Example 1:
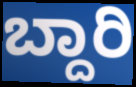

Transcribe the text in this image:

ಬ್ದಾರಿ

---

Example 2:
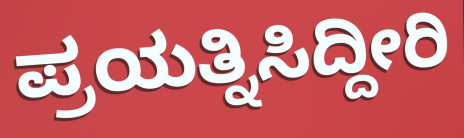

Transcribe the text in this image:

ಪ್ರಯತ್ನಿಸಿದ್ದೀರಿ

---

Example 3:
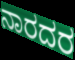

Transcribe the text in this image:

ನಾರದರ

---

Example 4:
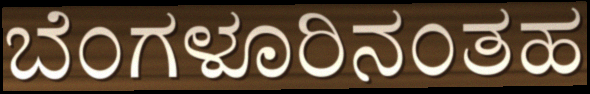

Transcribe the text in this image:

ಬೆಂಗಳೂರಿನಂತಹ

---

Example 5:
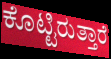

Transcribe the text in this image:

ಕೊಟ್ಟಿರುತ್ತಾರೆ